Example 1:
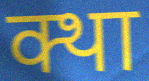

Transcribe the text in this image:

क्था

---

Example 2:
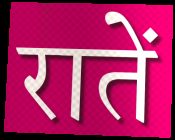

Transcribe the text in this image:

रातें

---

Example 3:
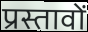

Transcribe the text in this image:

प्रस्तावों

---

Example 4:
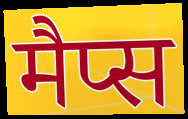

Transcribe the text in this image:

मैप्स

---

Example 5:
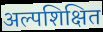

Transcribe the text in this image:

अल्पशिक्षित